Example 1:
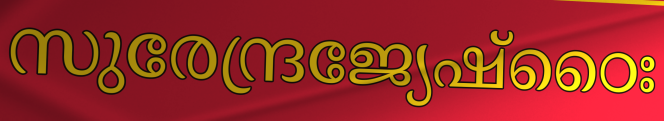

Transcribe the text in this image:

സുരേന്ദ്രജ്യേഷ്ഠൈഃ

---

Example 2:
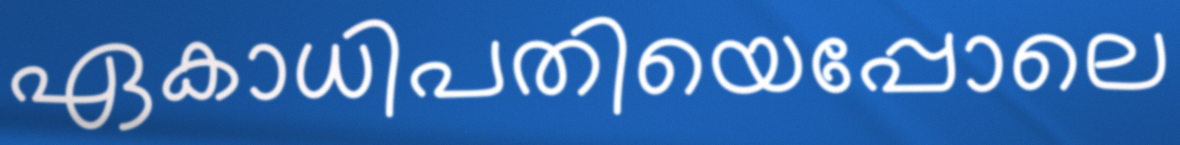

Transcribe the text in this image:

ഏകാധിപതിയെപ്പോലെ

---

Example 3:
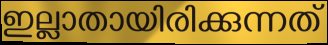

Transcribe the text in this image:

ഇല്ലാതായിരിക്കുന്നത്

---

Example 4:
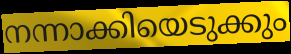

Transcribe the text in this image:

നന്നാക്കിയെടുക്കും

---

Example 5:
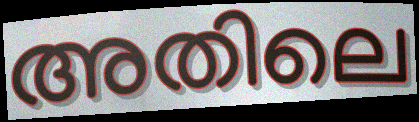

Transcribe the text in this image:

അതിലെ